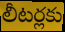
లీటర్లకు